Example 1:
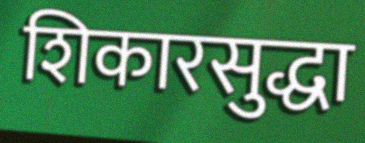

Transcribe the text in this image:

शिकारसुद्धा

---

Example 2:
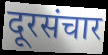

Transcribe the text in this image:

दूरसंचार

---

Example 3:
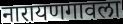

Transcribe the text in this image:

नारायणगावला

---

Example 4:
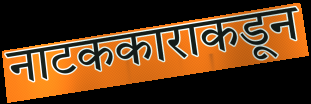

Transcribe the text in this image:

नाटककाराकडून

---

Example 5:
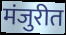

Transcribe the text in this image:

मंजुरीत